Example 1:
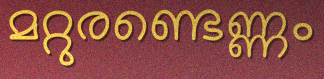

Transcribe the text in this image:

മറ്റുരണ്ടെണ്ണം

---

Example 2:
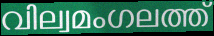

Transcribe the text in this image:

വില്വമംഗലത്ത്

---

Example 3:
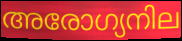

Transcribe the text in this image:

അരോഗ്യനില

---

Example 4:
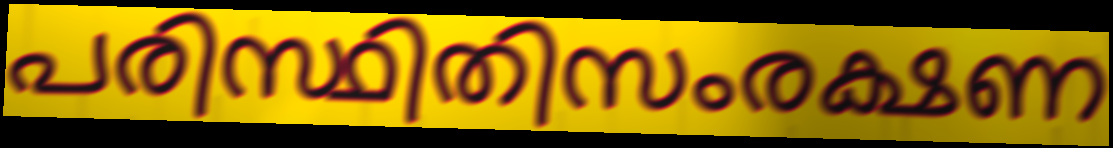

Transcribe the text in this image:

പരിസ്ഥിതിസംരക്ഷണ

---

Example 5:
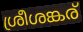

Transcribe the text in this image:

ശ്രീശങ്കര്